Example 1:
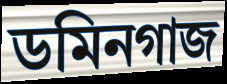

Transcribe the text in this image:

ডমিনগাজ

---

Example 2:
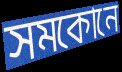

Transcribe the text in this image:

সমকোনে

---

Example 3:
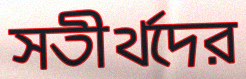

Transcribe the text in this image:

সতীর্থদের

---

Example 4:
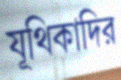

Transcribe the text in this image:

যূথিকাদির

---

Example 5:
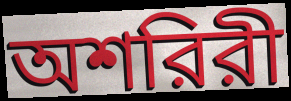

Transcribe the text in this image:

অশরিরী